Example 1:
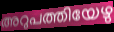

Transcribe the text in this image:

അറുപത്തിയേഴു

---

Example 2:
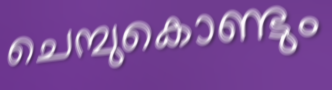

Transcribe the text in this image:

ചെമ്പുകൊണ്ടും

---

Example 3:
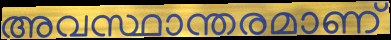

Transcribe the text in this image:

അവസ്ഥാന്തരമാണ്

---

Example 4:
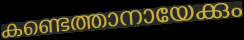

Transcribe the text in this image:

കണ്ടെത്താനായേക്കും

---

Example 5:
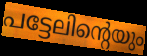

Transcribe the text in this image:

പട്ടേലിന്റെയും